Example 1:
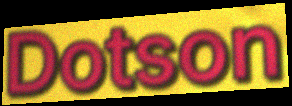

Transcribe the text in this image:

Dotson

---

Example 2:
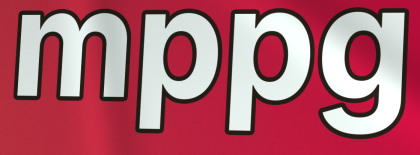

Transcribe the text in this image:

mppg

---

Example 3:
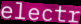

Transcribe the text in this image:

electr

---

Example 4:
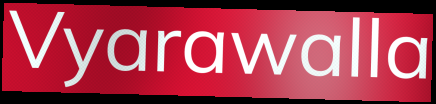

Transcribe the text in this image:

Vyarawalla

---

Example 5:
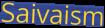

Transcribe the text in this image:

Saivaism